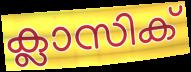
ക്ലാസിക്